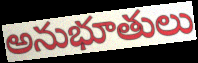
అనుభూతులు